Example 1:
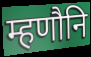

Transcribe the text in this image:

म्हणौनि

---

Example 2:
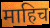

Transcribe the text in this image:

माहिच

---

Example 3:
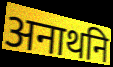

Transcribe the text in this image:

अनाथनि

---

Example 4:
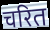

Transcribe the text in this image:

चरित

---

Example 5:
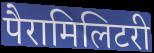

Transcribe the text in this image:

पैरामिलिटरी